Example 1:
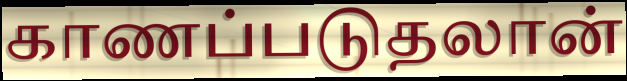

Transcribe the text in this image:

காணப்படுதலான்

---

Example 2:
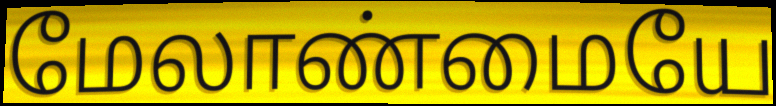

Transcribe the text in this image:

மேலாண்மையே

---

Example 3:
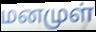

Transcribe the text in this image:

மனமுள்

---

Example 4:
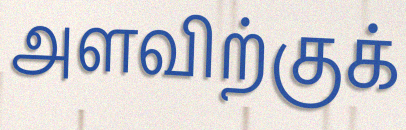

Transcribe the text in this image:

அளவிற்குக்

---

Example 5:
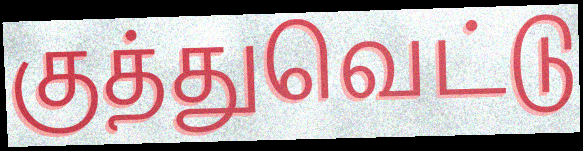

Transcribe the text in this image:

குத்துவெட்டு